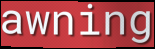
awning